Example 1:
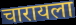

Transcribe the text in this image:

चारायला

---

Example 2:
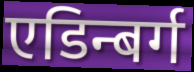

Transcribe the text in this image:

एडिन्बर्ग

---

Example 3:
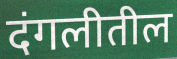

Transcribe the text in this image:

दंगलीतील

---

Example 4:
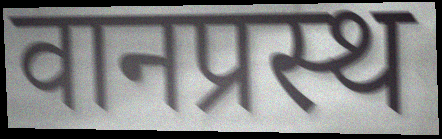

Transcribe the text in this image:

वानप्रस्थ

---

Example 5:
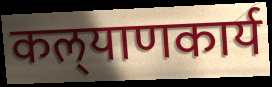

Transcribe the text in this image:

कल्याणकार्य